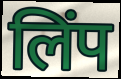
लिंप